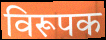
विरूपक